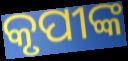
କୃପୀଙ୍କ